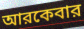
আরকেবার